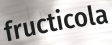
fructicola